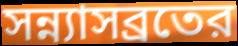
সন্ন্যাসব্রতের